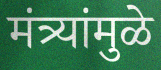
मंत्र्यांमुळे